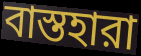
বাস্তহারা